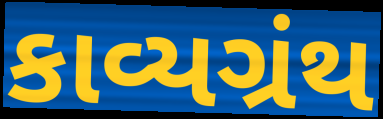
કાવ્યગ્રંથ